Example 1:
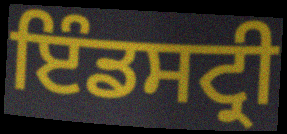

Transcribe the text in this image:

ਇੰਡਸਟ੍ਰੀ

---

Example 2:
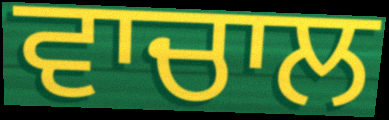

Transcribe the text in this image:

ਵਾਚਾਲ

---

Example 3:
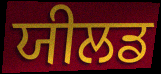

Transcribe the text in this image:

ਯੀਲਡ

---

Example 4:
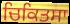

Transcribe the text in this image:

ਚਿਕਿਤਸਾ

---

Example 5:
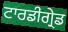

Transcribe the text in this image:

ਟਾਰਡੀਗ੍ਰੇਡ